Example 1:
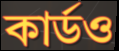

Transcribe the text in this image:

কার্ডও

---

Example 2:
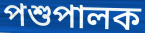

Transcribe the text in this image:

পশুপালক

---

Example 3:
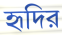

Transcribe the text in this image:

হৃদির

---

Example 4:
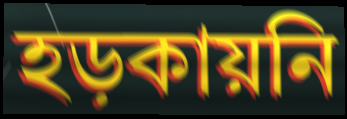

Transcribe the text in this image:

হড়কায়নি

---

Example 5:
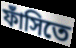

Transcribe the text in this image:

ফাঁসিতে